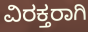
ವಿರಕ್ತರಾಗಿ